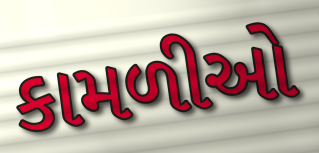
કામળીઓ